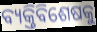
ବ୍ୟକ୍ତିବିଶେଷକୁ